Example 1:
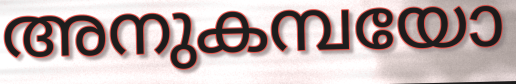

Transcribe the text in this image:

അനുകമ്പയോ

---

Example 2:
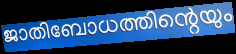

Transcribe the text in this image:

ജാതിബോധത്തിന്റെയും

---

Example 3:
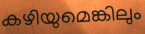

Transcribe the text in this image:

കഴിയുമെങ്കിലും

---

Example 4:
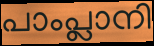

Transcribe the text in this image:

പാംപ്ലാനി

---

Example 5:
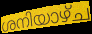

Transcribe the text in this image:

ശനിയാഴ്ച